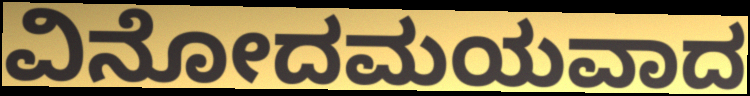
ವಿನೋದಮಯವಾದ